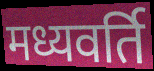
मध्यवर्ति